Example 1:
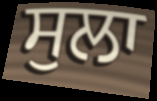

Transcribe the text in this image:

ਸੁਲਾ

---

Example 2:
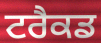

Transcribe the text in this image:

ਟਰੈਕਡ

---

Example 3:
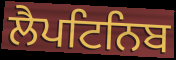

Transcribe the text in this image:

ਲੈਪਟਿਨਿਬ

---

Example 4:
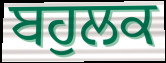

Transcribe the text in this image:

ਬਹੁਲਕ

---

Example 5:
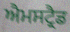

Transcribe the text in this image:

ਐਮਸਟ੍ਰੈਡ